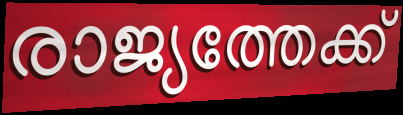
രാജ്യത്തേക്ക്